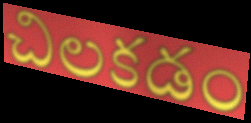
చిలకడం